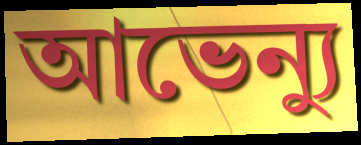
আভেন্যু